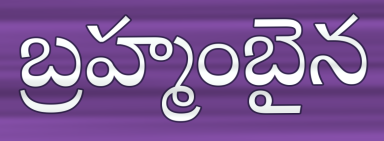
బ్రహ్మంబైన